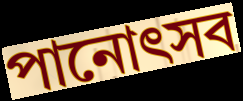
পানোৎসব